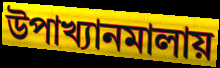
উপাখ্যানমালায়